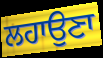
ਲਹਾਉਣਾ